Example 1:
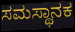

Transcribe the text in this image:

ಸಮಸ್ಥಾನಕ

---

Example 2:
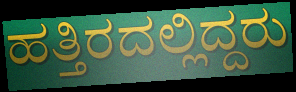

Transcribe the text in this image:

ಹತ್ತಿರದಲ್ಲಿದ್ದರು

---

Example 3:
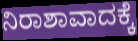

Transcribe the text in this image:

ನಿರಾಶಾವಾದಕ್ಕೆ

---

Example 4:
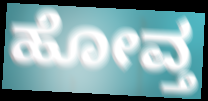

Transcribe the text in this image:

ಹೋವ್ತ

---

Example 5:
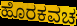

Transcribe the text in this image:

ಹೊರಕವಚ